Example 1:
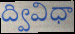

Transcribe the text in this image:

ద్వివిధా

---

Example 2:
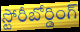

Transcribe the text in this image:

స్టోరీబోర్డింగ్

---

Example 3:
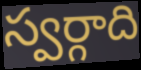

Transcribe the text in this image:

స్వర్గాది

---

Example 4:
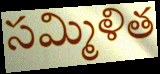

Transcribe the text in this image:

సమ్మిళిత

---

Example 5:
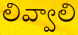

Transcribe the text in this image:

లివ్వాలి